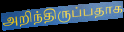
அறிந்திருப்பதாக